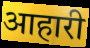
आहारी